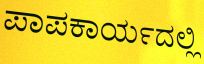
ಪಾಪಕಾರ್ಯದಲ್ಲಿ